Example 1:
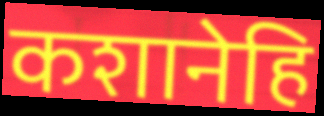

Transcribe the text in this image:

कशानेहि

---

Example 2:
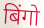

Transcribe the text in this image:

बिंगो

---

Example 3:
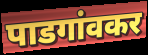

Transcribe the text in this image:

पाडगांवकर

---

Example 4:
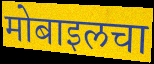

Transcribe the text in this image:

मोबाइलचा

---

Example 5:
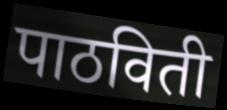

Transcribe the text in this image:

पाठविती